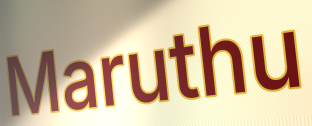
Maruthu